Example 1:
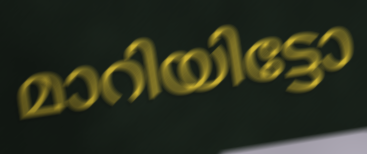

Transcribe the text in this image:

മാറിയിട്ടോ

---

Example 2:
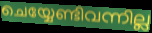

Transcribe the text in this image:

ചെയ്യേണ്ടിവന്നില്ല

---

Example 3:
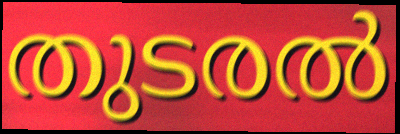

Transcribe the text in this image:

തുടരൽ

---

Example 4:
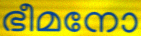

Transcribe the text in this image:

ഭീമനോ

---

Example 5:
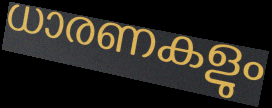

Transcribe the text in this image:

ധാരണകളും